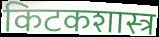
किटकशास्‍त्र